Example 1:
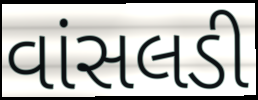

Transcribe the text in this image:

વાંસલડી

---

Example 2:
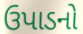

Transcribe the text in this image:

ઉપાડનો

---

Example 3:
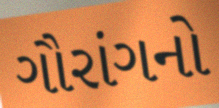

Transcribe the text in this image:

ગૌરાંગનો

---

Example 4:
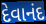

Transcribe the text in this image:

દેવાનંદ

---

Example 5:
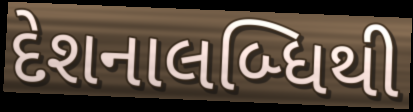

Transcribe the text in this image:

દેશનાલબ્ધિથી